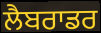
ਲੈਬਰਾਡਰ